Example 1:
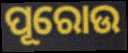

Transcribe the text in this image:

ପୂରୋଉ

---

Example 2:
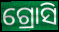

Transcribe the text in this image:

ଗ୍ରୋସି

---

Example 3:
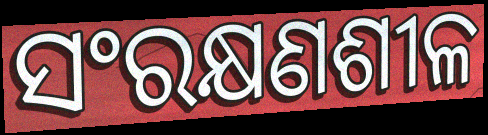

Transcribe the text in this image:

ସଂରକ୍ଷଣଶୀଳ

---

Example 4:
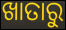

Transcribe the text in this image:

ଖାତାରୁ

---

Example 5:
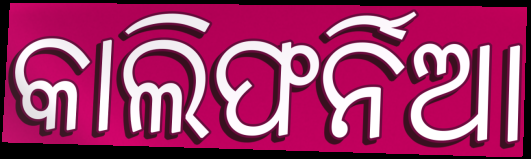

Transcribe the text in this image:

କାଲିଫର୍ନିଆ